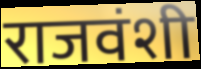
राजवंशी